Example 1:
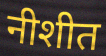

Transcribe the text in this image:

नीशीत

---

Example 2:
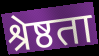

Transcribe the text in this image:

श्रेष्ठता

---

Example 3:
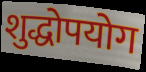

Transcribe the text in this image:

शुद्धोपयोग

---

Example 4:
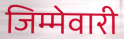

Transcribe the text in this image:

जिम्मेवारी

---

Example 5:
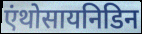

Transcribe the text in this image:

एंथोसायनिडिन